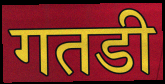
गतडी